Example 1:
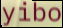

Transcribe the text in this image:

yibo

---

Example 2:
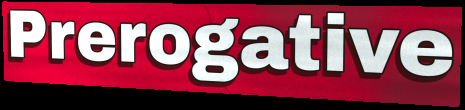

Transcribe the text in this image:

Prerogative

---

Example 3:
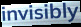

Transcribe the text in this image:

invisibly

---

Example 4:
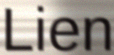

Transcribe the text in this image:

Lien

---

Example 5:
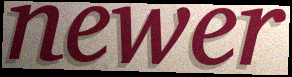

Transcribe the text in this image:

newer